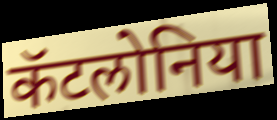
कॅटलोनिया